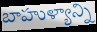
బాహుళ్యాన్ని